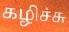
கழிச்சு